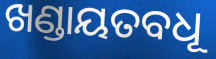
ଖଣ୍ଡାୟତବଧୂ